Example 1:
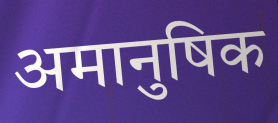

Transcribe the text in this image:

अमानुषिक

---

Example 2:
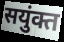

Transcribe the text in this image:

सयुंक्त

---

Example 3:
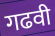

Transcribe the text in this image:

गढवी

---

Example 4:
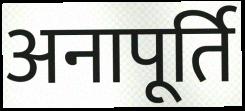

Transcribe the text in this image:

अनापूर्ति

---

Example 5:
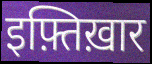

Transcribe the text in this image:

इफ़्तिख़ार